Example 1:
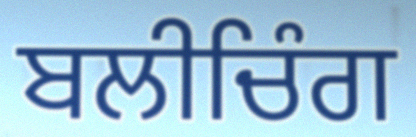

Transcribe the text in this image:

ਬਲੀਚਿੰਗ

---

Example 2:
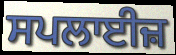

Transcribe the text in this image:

ਸਪਲਾਈਜ਼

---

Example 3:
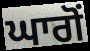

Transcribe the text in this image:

ਘਾਗੋਂ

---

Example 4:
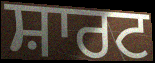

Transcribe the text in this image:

ਸ਼ਾਰਟ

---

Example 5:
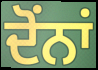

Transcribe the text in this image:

ਦੋਂਨਾਂ